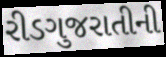
રીડગુજરાતીની